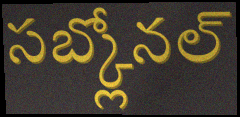
సబ్క్లోనల్